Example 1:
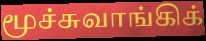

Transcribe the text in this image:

மூச்சுவாங்கிக்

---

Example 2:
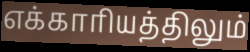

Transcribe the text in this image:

எக்காரியத்திலும்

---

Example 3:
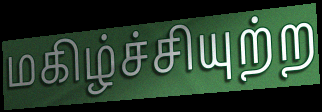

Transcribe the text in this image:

மகிழ்ச்சியுற்ற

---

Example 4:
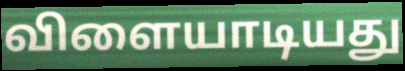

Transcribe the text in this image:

விளையாடியது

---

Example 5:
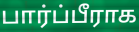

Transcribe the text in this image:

பார்ப்பீராக